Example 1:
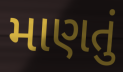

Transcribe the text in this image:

માણતું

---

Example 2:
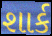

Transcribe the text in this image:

શાર્ક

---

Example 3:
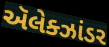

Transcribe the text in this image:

ઍલેક્ઝાંડર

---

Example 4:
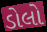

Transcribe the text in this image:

ડોલો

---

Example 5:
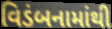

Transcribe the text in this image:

વિડંબનામાંથી